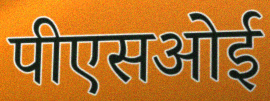
पीएसओई